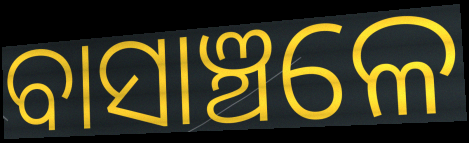
ବାସାଞ୍ଚଳେ